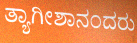
ತ್ಯಾಗೀಶಾನಂದರು